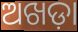
ଅଖଡ଼ା